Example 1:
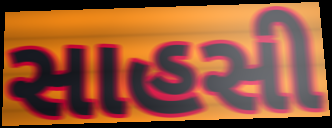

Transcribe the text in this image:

સાહસી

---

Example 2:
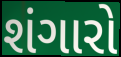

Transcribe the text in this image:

શંગારો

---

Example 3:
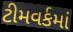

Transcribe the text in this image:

ટીમવર્કમાં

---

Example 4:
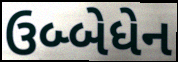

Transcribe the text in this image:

ઉબ્બેધેન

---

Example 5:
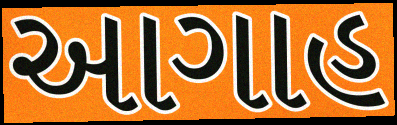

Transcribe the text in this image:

આગાહ